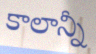
కాలాన్నీ